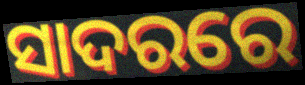
ସାଦରରେ